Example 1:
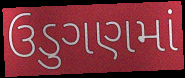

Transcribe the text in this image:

ઉડુગણમાં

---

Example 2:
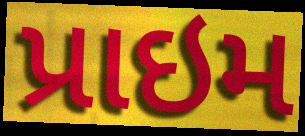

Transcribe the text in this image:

પ્રાઇમ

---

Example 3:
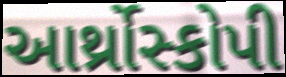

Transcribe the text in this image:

આર્થ્રોસ્કોપી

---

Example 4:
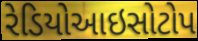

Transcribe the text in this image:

રેડિયોઆઇસોટોપ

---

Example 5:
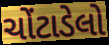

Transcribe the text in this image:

ચોંટાડેલો